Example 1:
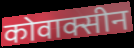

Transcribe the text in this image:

कोवाक्सीन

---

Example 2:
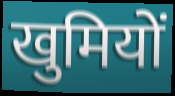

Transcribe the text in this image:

खुमियों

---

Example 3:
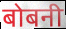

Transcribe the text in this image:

बोबनी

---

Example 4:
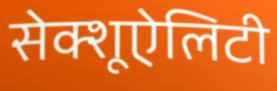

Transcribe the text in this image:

सेक्शूऐलिटी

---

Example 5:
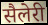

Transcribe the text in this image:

सैलेरी